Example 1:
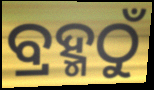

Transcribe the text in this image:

ବ୍ରହ୍ମଠୁଁ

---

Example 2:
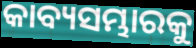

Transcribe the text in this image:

କାବ୍ୟସମ୍ଭାରକୁ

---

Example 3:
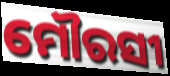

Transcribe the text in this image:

ମୌରସୀ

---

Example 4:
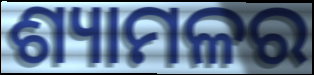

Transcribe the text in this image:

ଶ୍ୟାମଳର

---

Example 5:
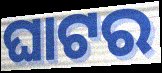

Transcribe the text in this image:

ଘାଟର